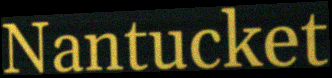
Nantucket